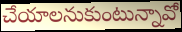
చేయాలనుకుంటున్నావో